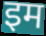
इम